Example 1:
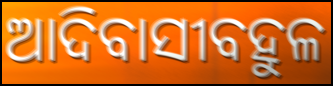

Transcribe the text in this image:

ଆଦିବାସୀବହୁଳ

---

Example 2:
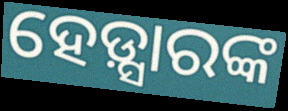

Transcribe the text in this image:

ହେଡ଼୍ସାରଙ୍କ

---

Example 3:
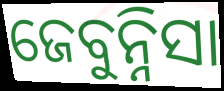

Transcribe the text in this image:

ଜେବୁନ୍ନିସା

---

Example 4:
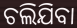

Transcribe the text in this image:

ଚଲିଯିବା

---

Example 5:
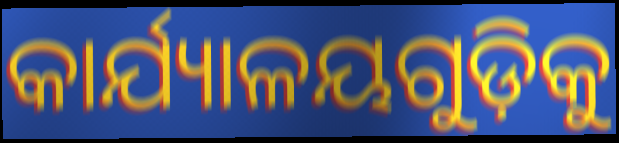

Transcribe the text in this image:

କାର୍ଯ୍ୟାଳୟଗୁଡ଼ିକୁ